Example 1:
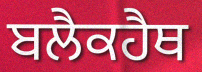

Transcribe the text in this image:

ਬਲੈਕਹੈਥ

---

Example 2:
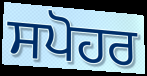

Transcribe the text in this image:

ਸਪੋਹਰ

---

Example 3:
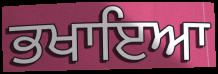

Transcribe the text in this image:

ਭਖਾਇਆ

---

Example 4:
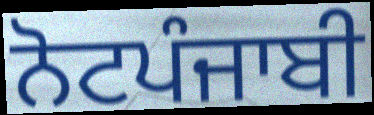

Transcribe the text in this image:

ਨੋਟਪੰਜਾਬੀ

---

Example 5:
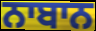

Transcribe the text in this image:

ਨਾਬਾਨ